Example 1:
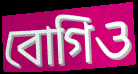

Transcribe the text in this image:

বোগিও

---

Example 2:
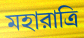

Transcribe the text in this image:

মহারাত্রি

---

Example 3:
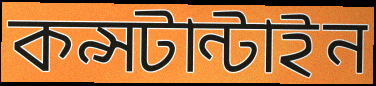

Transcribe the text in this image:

কন্সটান্টাইন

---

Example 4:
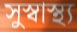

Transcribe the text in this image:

সুস্বাস্থ্য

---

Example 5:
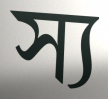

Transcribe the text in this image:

স্য